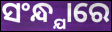
ସଂନ୍ଧ୍ଯାରେ